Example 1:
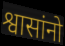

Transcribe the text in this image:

श्वासांनो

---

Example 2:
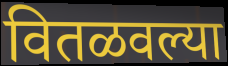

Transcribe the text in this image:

वितळवल्या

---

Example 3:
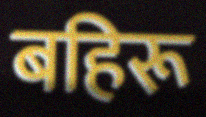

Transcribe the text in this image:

बहिरू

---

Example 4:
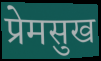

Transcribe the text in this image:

प्रेमसुख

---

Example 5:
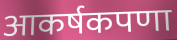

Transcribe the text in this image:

आकर्षकपणा